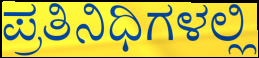
ಪ್ರತಿನಿಧಿಗಳಲ್ಲಿ